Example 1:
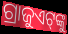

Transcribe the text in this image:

ଗ୍ରାଜୁଏଟ୍‌ଙ୍କୁ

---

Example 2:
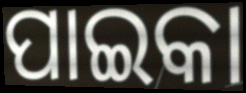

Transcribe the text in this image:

ପାଇକା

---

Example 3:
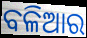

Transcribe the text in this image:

ବଳିଆର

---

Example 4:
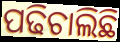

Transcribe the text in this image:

ପଢିଚାଲିଛି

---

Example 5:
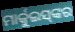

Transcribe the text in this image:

ମାର୍କୁଇସ୍‍ଙ୍କର